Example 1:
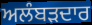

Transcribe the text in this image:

ਅਲੰਬੜਦਾਰ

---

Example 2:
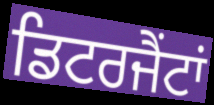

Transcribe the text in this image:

ਡਿਟਰਜੈਂਟਾਂ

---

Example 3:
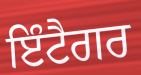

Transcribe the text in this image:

ਇੰਟੈਗਰ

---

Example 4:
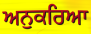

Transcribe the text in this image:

ਅਨੁਕਰਿਆ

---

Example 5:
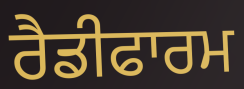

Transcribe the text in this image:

ਰੈਡੀਫਾਰਮ